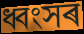
ধ্বংসৰ